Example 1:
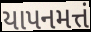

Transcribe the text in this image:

યાપનમત્તં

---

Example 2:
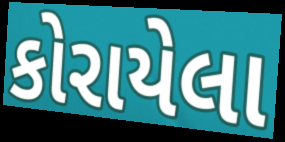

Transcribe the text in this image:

કોરાયેલા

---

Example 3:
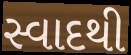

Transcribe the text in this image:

સ્વાદથી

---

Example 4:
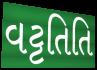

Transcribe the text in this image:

વટ્ટતિતિ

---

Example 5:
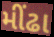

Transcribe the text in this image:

મીંઢા